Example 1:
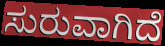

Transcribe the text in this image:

ಸುರುವಾಗಿದೆ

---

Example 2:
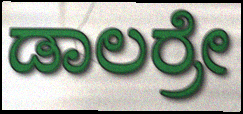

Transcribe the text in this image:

ಡಾಲರ್ರೇ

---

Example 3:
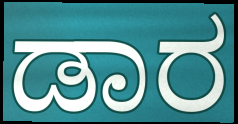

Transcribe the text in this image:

ಡಾರ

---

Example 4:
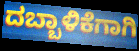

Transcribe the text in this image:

ದಬ್ಬಾಳಿಕೆಗಾಗಿ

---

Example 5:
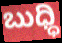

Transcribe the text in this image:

ಬುಧ್ಧಿ